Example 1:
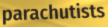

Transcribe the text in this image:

parachutists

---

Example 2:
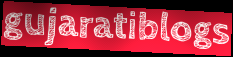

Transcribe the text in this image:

gujaratiblogs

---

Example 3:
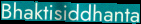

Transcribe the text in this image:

Bhaktisiddhanta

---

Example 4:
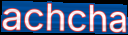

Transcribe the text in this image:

achcha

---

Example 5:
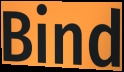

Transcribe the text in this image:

Bind